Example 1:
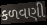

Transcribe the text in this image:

કળવણી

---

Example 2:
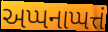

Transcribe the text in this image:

અપ્પનાપ્પત્તં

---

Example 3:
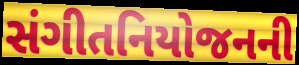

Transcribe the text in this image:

સંગીતનિયોજનની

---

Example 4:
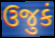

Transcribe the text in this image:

ઉજુકં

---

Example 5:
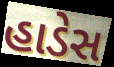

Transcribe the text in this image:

હાડેસ